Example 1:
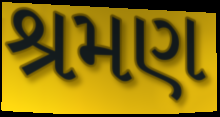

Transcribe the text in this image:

શ્રમણ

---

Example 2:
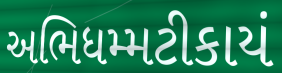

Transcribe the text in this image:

અભિધમ્મટીકાયં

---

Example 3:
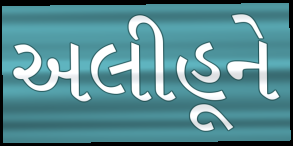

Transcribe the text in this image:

અલીહૂને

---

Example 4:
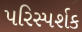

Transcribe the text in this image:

પરિસ્પર્શક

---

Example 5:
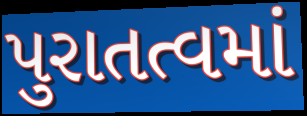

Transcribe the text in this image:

પુરાતત્વમાં